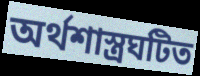
অর্থশাস্ত্রঘটিত